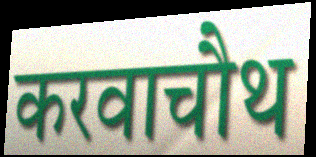
करवाचौथ